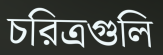
চরিত্রগুলি